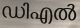
ഡിഎൽ